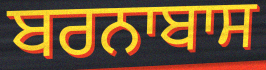
ਬਰਨਾਬਾਸ